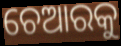
ଚେଆରକୁ